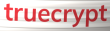
truecrypt